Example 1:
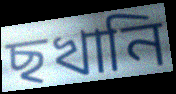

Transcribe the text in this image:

ছখানি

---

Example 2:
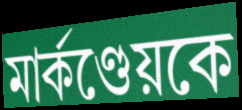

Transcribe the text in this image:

মার্কণ্ডেয়কে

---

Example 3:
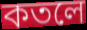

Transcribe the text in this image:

কতলে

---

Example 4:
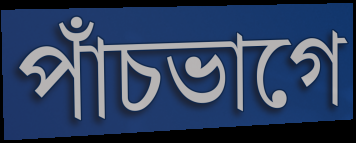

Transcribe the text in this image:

পাঁচভাগে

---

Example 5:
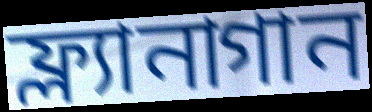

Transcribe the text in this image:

ফ্ল্যানাগান